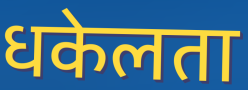
धकेलता